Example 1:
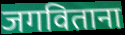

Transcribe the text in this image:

जगविताना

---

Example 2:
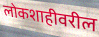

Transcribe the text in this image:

लोकशाहीवरील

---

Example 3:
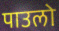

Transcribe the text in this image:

पाउलो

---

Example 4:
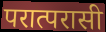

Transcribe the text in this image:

परात्परासी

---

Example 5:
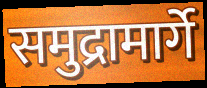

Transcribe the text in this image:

समुद्रामार्गे